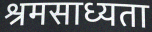
श्रमसाध्यता